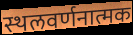
स्थलवर्णनात्मक